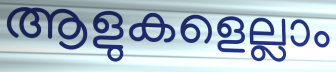
ആളുകളെല്ലാം